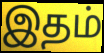
இதம்